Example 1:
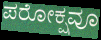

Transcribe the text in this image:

ಪರೋಕ್ಷವೂ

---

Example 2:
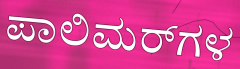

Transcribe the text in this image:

ಪಾಲಿಮರ್‌ಗಳ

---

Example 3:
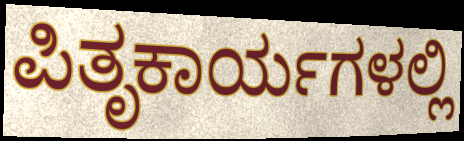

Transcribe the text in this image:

ಪಿತೃಕಾರ್ಯಗಳಲ್ಲಿ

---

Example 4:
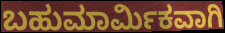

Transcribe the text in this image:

ಬಹುಮಾರ್ಮಿಕವಾಗಿ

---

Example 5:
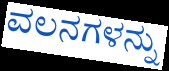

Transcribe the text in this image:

ವಲನಗಳನ್ನು